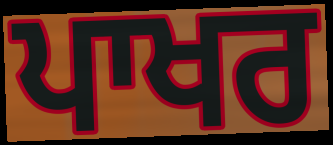
ਪਾਖਰ